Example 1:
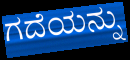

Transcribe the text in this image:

ಗದೆಯನ್ನು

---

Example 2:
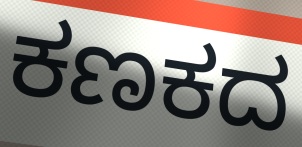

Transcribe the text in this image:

ಕಣಕದ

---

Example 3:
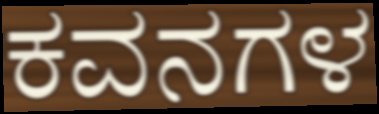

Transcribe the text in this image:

ಕವನಗಳ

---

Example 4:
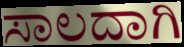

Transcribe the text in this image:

ಸಾಲದಾಗಿ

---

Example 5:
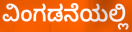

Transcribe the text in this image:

ವಿಂಗಡನೆಯಲ್ಲಿ